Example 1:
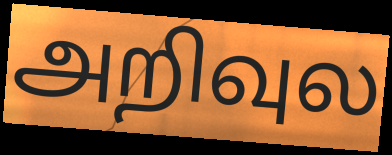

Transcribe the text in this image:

அறிவுல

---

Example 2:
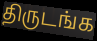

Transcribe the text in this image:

திருடங்க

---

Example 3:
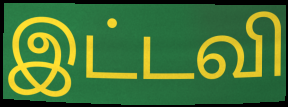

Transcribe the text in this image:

இட்டவி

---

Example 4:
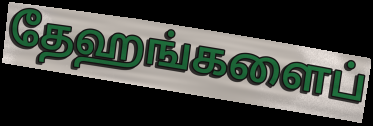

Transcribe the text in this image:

தேஹங்களைப்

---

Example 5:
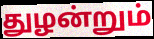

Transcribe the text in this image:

துழன்றும்